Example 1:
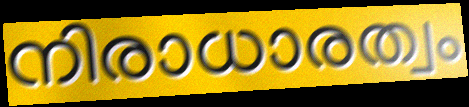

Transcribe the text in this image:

നിരാധാരത്വം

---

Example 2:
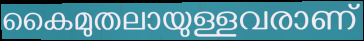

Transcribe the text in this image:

കൈമുതലായുള്ളവരാണ്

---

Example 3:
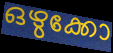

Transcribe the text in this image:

ഒഴുക്കോ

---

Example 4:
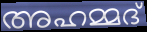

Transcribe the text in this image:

അഹമ്മദ്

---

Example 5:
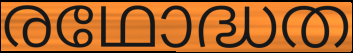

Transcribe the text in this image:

രഥോദ്ധത